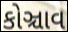
કોઞ્ચાવ